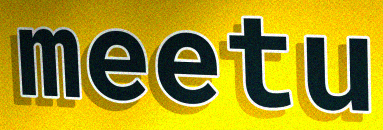
meetu